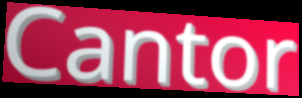
Cantor